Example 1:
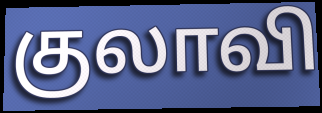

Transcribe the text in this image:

குலாவி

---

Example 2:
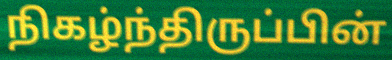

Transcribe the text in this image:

நிகழ்ந்திருப்பின்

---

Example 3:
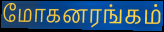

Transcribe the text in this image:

மோகனரங்கம்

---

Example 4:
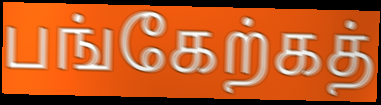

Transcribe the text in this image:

பங்கேற்கத்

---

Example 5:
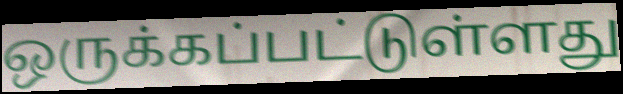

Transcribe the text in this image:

ஒருக்கப்பட்டுள்ளது